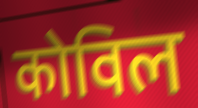
कोविल